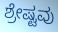
ಶ್ರೇಷ್ಟವು